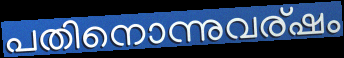
പതിനൊന്നുവര്ഷം